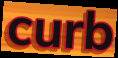
curb